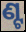
ଣ୍ଟ